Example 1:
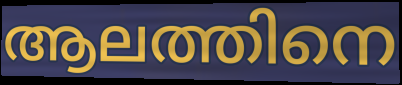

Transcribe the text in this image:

ആലത്തിനെ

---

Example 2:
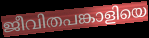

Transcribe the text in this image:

ജീവിതപങ്കാളിയെ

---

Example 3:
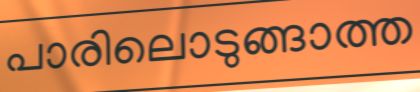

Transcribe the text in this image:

പാരിലൊടുങ്ങാത്ത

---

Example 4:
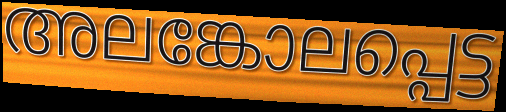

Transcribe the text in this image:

അലങ്കോലപ്പെട്ട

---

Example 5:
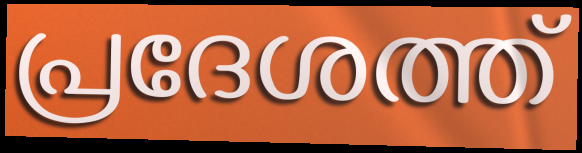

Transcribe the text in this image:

പ്രദേശത്ത്